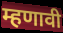
म्हणावी